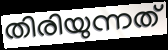
തിരിയുന്നത്